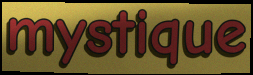
mystique